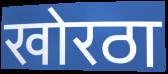
खोरठा